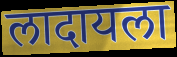
लादायला